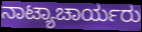
ನಾಟ್ಯಾಚಾರ್ಯರು